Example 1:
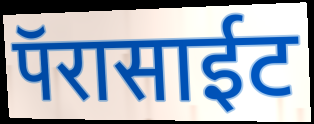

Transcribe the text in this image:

पॅरासाईट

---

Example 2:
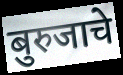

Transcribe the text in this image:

बुरुजाचे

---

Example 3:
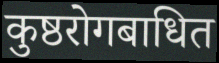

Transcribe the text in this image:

कुष्ठरोगबाधित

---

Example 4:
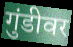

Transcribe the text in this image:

गुंडीवर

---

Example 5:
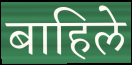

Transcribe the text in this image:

बाहिले